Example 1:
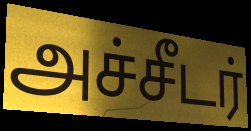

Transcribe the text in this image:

அச்சீடர்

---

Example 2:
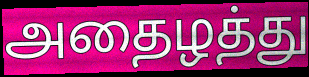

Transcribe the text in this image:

அதைழத்து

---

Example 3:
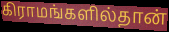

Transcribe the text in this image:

கிராமங்களில்தான்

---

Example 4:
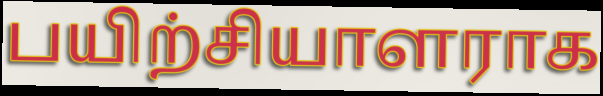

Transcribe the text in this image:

பயிற்சியாளராக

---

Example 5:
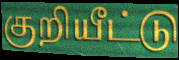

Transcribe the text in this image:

குறியீட்டு